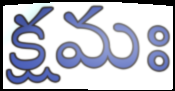
క్షమః